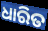
ଧାରିତ